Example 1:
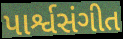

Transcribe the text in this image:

પાર્શ્વસંગીત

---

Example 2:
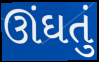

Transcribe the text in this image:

ઊંઘતું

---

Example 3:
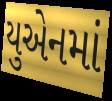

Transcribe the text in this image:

યુએનમાં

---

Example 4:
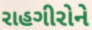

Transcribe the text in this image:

રાહગીરોને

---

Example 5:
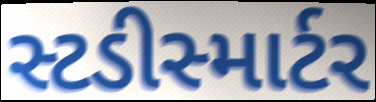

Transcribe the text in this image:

સ્ટડીસ્માર્ટર